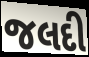
જલદી